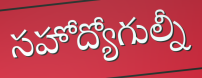
సహోద్యోగుల్నీ